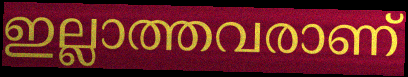
ഇല്ലാത്തവരാണ്